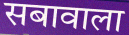
सबावाला